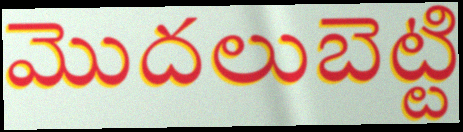
మొదలుబెట్టి